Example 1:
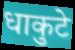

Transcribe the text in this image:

धाकुटे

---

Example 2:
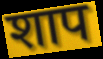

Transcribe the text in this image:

शाप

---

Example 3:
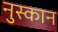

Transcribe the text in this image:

नुस्कान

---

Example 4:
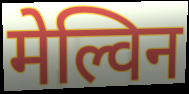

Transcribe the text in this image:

मेल्विन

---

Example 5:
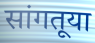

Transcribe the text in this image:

सांगतूया